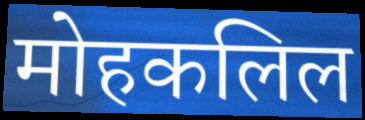
मोहकलिल